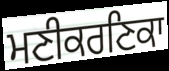
ਮਣੀਕਰਣਿਕਾ